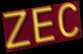
ZEC